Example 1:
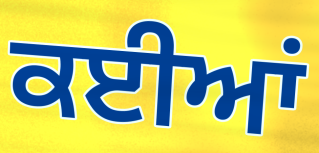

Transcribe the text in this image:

ਕਈਆਂ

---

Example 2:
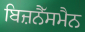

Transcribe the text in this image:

ਬਿਜ਼ਨੈੱਸਮੈਨ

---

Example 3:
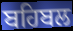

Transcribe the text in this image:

ਬਹਿਬਲ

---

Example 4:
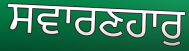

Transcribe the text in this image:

ਸਵਾਰਣਹਾਰੁ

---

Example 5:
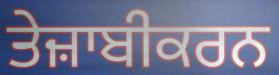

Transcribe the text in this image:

ਤੇਜ਼ਾਬੀਕਰਨ